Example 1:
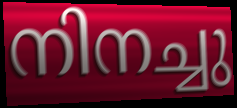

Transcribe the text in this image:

നിനച്ചു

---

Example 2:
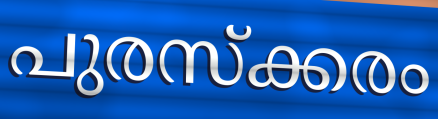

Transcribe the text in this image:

പുരസ്ക്കരം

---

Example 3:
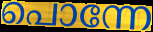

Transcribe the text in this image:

പൊന്നേ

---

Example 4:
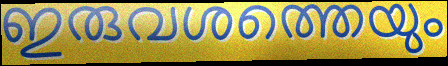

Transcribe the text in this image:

ഇരുവശത്തെയും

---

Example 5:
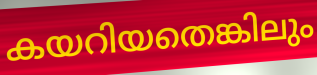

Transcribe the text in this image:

കയറിയതെങ്കിലും